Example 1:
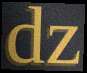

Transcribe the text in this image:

dz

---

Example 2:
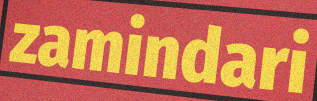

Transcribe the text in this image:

zamindari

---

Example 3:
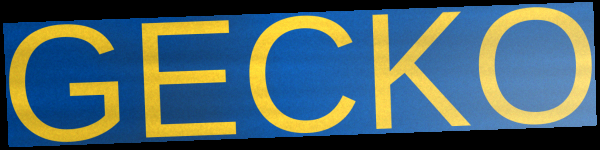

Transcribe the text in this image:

GECKO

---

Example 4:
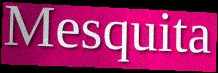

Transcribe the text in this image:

Mesquita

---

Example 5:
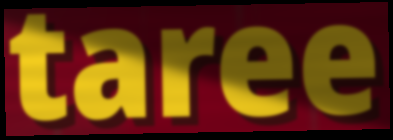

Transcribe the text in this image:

taree